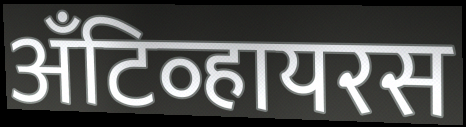
अँटिव्हायरस